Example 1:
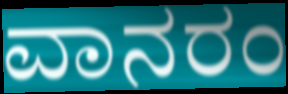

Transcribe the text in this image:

ವಾನರಂ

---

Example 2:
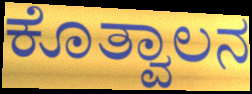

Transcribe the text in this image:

ಕೊತ್ವಾಲನ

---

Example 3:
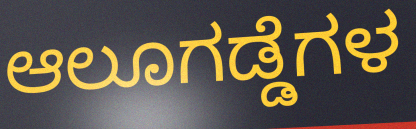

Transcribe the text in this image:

ಆಲೂಗಡ್ಡೆಗಳ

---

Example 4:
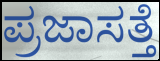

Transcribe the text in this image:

ಪ್ರಜಾಸತ್ತೆ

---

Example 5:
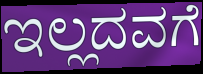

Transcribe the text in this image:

ಇಲ್ಲದವಗೆ